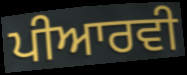
ਪੀਆਰਵੀ